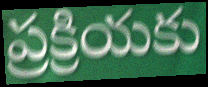
ప్రక్రియకు